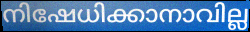
നിഷേധിക്കാനാവില്ല